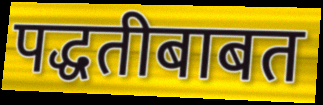
पद्धतीबाबत